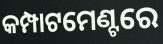
କମ୍ପାଟମେଣ୍ଟରେ